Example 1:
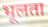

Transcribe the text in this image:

भूलता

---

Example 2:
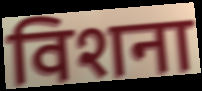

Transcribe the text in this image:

विशना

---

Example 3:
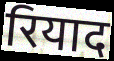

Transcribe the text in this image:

रियाद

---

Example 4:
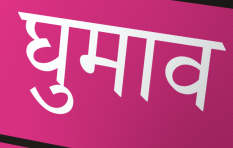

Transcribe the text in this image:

घुमाव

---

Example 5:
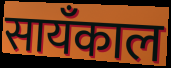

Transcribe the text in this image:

सायँकाल